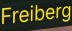
Freiberg